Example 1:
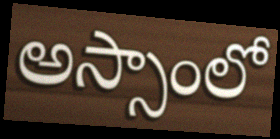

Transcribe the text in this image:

అస్సాంలో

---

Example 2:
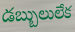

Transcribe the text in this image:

డబ్బులులేక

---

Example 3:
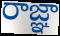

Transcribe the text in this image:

రాజ్ఞా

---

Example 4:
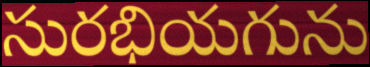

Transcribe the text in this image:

సురభియగును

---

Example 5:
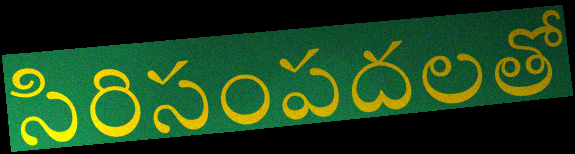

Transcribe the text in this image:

సిరిసంపదలతో